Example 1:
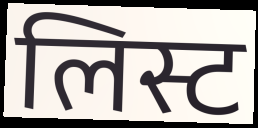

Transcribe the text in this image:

लिस्‍ट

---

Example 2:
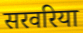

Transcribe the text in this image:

सरवरिया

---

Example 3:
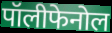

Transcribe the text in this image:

पॉलीफेनोल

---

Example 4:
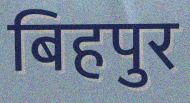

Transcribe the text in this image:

बिहपुर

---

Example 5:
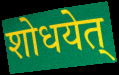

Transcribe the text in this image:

शोधयेत्